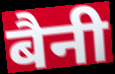
बैनी